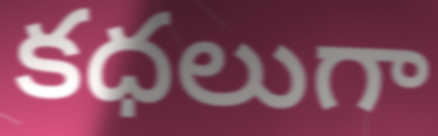
కధలుగా